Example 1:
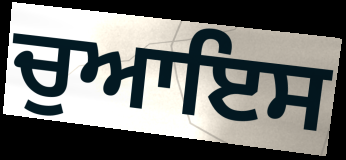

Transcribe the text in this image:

ਚੁਆਇਸ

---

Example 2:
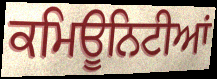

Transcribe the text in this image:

ਕਮਿਊਨਿਟੀਆਂ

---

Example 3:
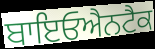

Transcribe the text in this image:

ਬਾਇਓਐਨਟੈਕ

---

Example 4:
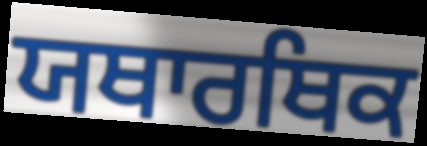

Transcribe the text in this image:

ਯਥਾਰਥਿਕ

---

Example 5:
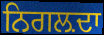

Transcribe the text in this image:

ਨਿਗਲ਼ਦਾ